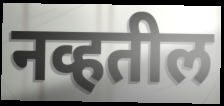
नव्हतील